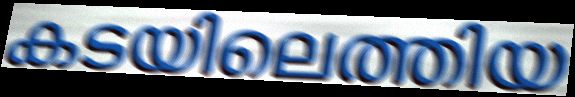
കടയിലെത്തിയ